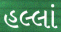
હલ્લાં